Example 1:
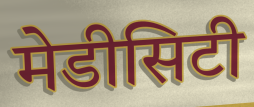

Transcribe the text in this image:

मेडीसिटी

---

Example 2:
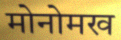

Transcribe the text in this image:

मोनोमख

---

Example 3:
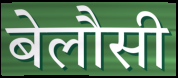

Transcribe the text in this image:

बेलौसी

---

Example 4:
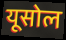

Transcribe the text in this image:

यूसोल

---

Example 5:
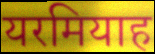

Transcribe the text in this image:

यरमियाह